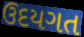
ઉદયગત